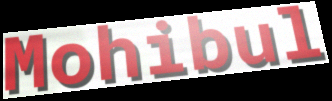
Mohibul